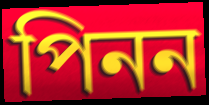
পিনন